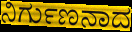
ನಿರ್ಗುಣನಾದ